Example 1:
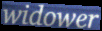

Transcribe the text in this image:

widower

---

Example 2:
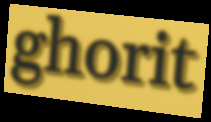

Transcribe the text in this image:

ghorit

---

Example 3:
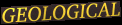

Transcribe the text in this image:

GEOLOGICAL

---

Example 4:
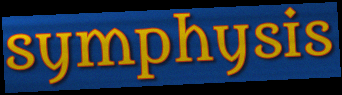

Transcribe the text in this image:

symphysis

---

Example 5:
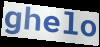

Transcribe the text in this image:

ghelo